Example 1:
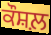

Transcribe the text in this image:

ਕੌਸ਼ਲ਼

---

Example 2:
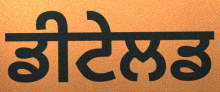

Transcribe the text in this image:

ਡੀਟੇਲਡ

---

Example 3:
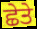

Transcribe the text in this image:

ਛੇਤੇ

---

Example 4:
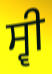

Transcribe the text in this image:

ਸ੍ਵੀ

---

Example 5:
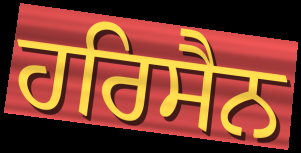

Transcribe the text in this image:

ਹਰਿਸੈਨ